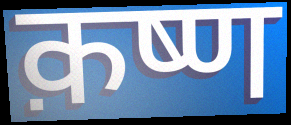
क़ष्ण